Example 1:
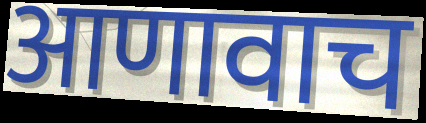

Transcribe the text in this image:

आणावाच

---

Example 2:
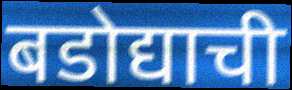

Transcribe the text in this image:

बडोद्याची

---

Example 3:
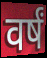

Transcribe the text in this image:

वर्षं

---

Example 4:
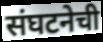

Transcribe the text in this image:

संघटनेची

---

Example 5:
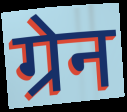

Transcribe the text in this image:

ग्रेन